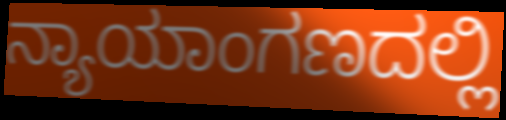
ನ್ಯಾಯಾಂಗಣದಲ್ಲಿ